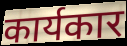
कार्यकार